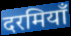
दरमियाँ